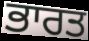
ਭਾਰਤ